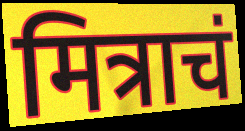
मित्राचं